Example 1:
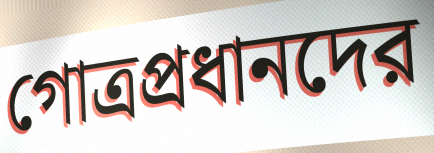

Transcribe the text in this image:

গোত্রপ্রধানদের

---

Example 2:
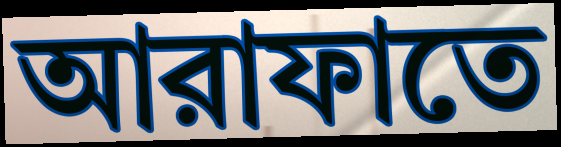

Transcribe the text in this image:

আরাফাতে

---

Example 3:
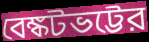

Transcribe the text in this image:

বেঙ্কটভট্টের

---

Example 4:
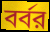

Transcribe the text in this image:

বর্বর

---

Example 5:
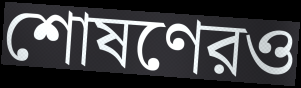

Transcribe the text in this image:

শোষণেরও